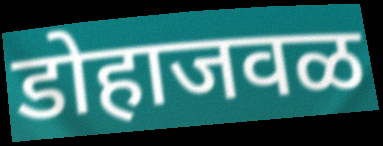
डोहाजवळ